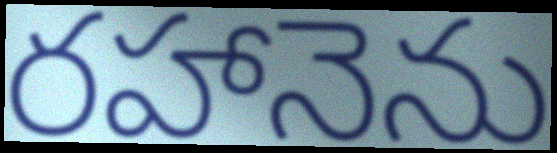
రహానెను